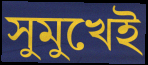
সুমুখেই